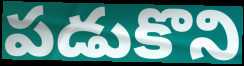
పడుకొని